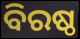
ବିରଷ୍ଠ